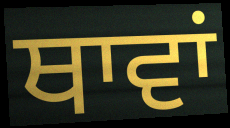
ਥਾਵਾਂ